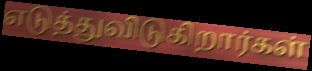
எடுத்துவிடுகிறார்கள்